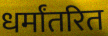
धर्मांतरित